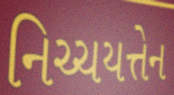
નિચ્ચયત્તેન